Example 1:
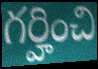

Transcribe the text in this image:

గర్హించి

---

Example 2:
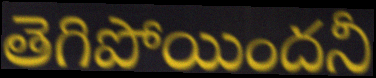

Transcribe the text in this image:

తెగిపోయిందనీ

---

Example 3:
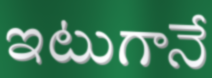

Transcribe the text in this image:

ఇటుగానే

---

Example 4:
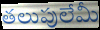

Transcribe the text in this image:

తలుపులేమీ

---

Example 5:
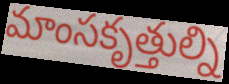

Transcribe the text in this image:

మాంసకృత్తుల్ని